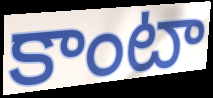
కాంటా